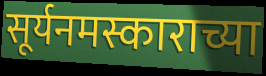
सूर्यनमस्काराच्या